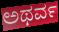
ಅಥರ್ವ